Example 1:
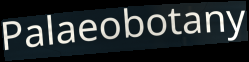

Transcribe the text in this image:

Palaeobotany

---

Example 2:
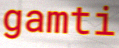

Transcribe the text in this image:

gamti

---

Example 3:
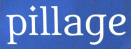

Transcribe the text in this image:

pillage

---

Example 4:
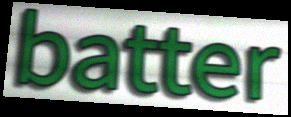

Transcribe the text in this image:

batter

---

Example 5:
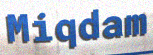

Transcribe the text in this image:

Miqdam